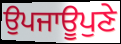
ਉਪਜਾਊਪੁਣੇ